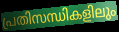
പ്രതിസന്ധികളിലും